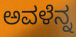
ಅವಳೆನ್ನ